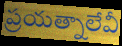
ప్రయత్నాలేవీ